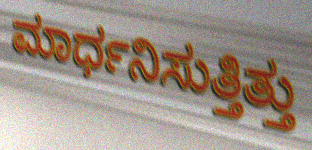
ಮಾರ್ಧನಿಸುತ್ತಿತ್ತು